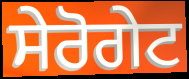
ਸੇਰੋਗੇਟ